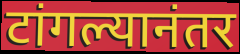
टांगल्यानंतर